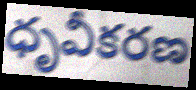
ధృవీకరణ